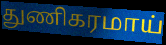
துணிகரமாய்